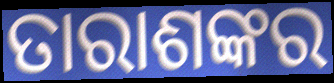
ତାରାଶଙ୍କର